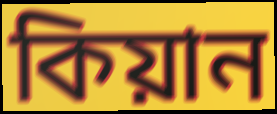
কিয়ান